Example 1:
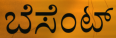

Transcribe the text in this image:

ಬೆಸೆಂಟ್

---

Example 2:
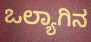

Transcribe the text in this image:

ಒಲ್ಯಾಗಿನ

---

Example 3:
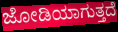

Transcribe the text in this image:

ಜೋಡಿಯಾಗುತ್ತದೆ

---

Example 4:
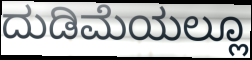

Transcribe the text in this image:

ದುಡಿಮೆಯಲ್ಲೂ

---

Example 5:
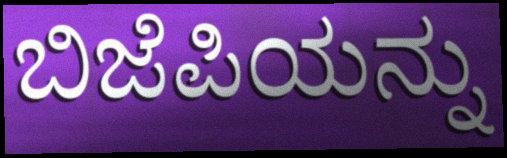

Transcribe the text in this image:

ಬಿಜೆಪಿಯನ್ನು